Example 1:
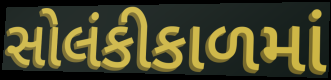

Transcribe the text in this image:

સોલંકીકાળમાં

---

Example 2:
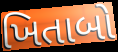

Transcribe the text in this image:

ખિતાબો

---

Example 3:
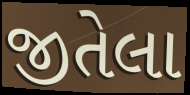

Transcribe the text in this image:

જીતેલા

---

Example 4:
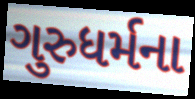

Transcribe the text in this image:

ગુરુધર્મના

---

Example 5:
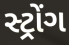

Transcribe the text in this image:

સ્ટ્રોંગ